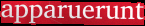
apparuerunt